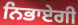
ਨਿਭਾਏਗੀ